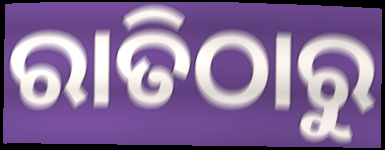
ରାତିଠାରୁ